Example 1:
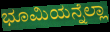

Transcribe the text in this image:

ಭೂಮಿಯನ್ನೆಲ್ಲಾ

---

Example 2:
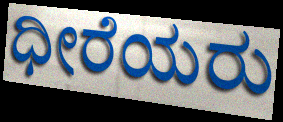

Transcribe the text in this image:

ಧೀರೆಯರು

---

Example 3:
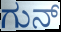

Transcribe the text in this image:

ಗುನ್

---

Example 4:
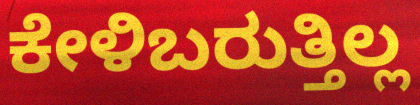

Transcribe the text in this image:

ಕೇಳಿಬರುತ್ತಿಲ್ಲ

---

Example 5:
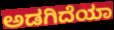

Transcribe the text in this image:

ಅಡಗಿದೆಯಾ